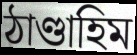
ঠাণ্ডাহিম